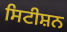
ਸਿਟੀਸ਼ਨ